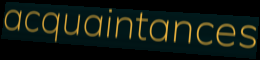
acquaintances